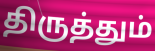
திருத்தும்